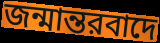
জন্মান্তরবাদে